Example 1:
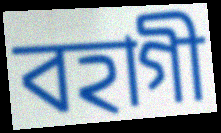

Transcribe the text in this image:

বহাগী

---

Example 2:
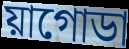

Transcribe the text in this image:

য়াগোডা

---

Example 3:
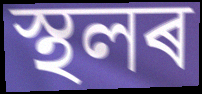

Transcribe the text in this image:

স্থলৰ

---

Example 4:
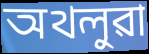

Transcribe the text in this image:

অথলুৱা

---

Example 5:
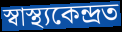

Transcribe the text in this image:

স্বাস্থ্যকেন্দ্ৰত